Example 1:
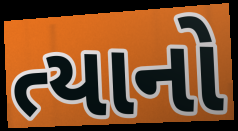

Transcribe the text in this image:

ત્યાનો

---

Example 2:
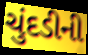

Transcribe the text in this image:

ચુંદડીની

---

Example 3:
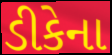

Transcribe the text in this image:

ડીકેના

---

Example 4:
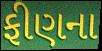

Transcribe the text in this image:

ફીણના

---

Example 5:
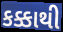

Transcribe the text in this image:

કક્કાથી